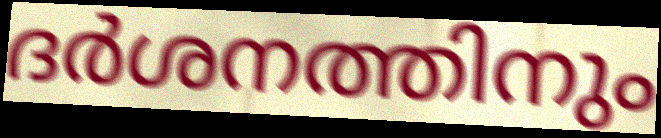
ദർശനത്തിനും